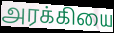
அரக்கியை